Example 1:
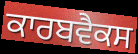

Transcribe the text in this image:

ਕਾਰਬਵੈਕਸ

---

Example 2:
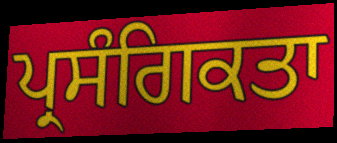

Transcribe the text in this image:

ਪ੍ਰਸੰਗਿਕਤਾ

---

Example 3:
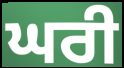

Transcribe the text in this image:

ਘਰੀ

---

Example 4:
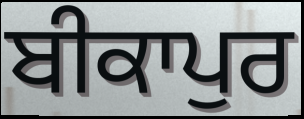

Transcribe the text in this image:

ਬੀਕਾਪੁਰ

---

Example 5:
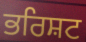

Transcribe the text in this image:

ਭਰਿਸ਼ਟ